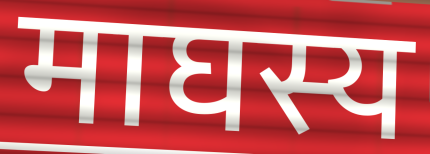
माघस्य